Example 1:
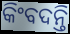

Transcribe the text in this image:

କିଂବଦନ୍ତି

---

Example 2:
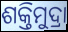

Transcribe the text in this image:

ଶକ୍ତିମୁଦ୍ରା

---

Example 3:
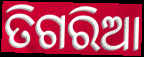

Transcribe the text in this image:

ତିଗରିଆ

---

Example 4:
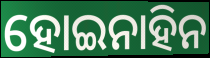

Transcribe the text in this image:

ହୋଇନାହିନ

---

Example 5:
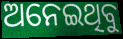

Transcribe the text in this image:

ଅନେଇଥିବୁ